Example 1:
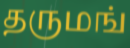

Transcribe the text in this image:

தருமங்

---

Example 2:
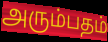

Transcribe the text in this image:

அரும்பதம்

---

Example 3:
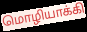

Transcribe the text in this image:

மொழியாக்கி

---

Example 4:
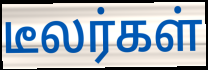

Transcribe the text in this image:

டீலர்கள்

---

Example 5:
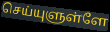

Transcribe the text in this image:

செய்யுளுள்ளே